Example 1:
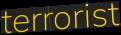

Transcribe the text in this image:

terrorist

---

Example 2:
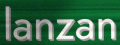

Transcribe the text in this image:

lanzan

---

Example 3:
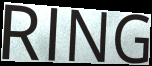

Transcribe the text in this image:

RING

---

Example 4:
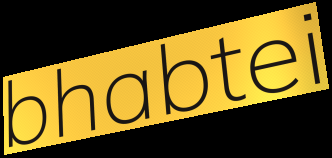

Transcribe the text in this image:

bhabtei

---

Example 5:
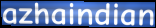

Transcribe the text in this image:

azhaindian